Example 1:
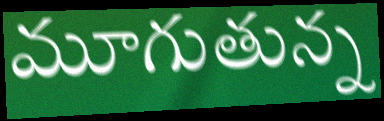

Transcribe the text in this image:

మూగుతున్న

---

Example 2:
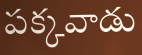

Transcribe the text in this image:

పక్కవాడు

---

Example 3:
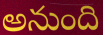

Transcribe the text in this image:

అనుంది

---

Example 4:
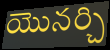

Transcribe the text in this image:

యొనర్చి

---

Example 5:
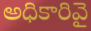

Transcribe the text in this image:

అధికారివై